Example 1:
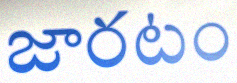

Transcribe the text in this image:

జారటం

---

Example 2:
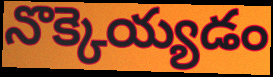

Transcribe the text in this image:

నొక్కెయ్యడం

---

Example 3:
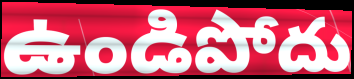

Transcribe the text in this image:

ఉండిపోదు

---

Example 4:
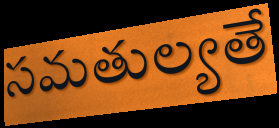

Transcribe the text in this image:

సమతుల్యతే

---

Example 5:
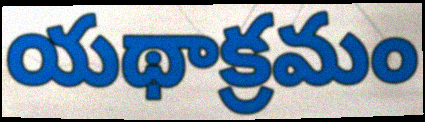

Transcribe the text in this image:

యథాక్రమం